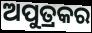
ଅପୁତ୍ରକର